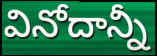
వినోదాన్నీ